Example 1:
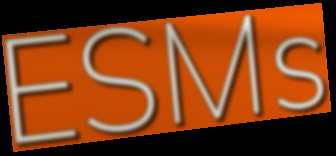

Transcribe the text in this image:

ESMs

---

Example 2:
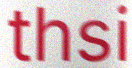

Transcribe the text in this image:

thsi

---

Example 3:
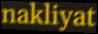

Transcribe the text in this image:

nakliyat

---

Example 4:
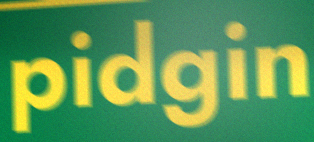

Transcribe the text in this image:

pidgin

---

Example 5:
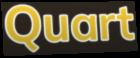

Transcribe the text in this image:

Quart